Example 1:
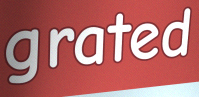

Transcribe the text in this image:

grated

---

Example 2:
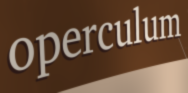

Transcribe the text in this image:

operculum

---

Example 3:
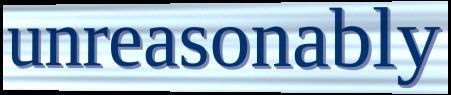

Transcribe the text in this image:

unreasonably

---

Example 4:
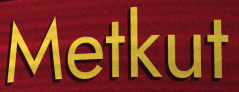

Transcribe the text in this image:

Metkut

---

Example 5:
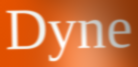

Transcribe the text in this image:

Dyne